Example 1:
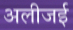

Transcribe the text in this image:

अलीजई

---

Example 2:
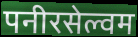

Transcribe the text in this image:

पनीरसेल्वम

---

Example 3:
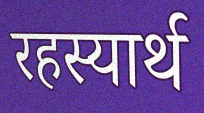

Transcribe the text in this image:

रहस्यार्थ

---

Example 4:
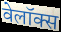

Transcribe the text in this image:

वेलॉक्स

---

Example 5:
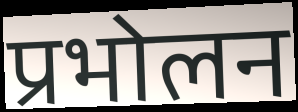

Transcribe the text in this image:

प्रभोलन